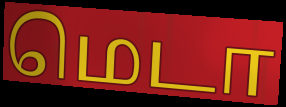
மெடா